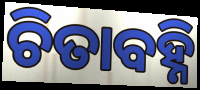
ଚିତାବହ୍ନି